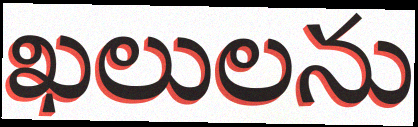
ఖలులను